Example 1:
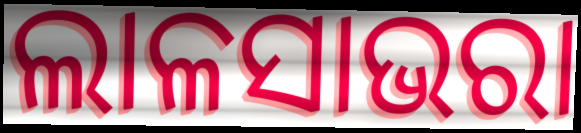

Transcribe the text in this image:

ଲାଳସାଭରା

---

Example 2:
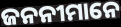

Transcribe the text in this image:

ଜନନୀମାନେ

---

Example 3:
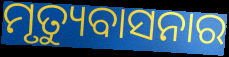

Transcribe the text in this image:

ମୃତ୍ୟୁବାସନାର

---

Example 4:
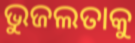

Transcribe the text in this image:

ଭୁଜଲତାକୁ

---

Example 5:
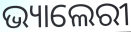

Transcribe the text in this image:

ଭ୍ୟାଲେରୀ